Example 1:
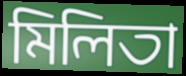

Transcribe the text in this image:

মিলিতা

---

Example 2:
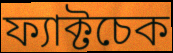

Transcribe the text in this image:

ফ্যাক্টচেক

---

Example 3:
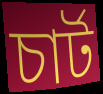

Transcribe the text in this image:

চার্ট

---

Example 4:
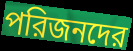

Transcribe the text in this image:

পরিজনদের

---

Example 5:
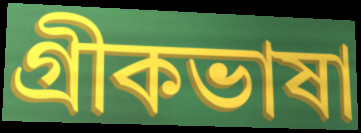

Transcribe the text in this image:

গ্রীকভাষা